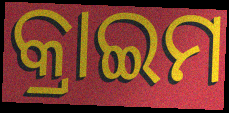
କ୍ରାଇମ